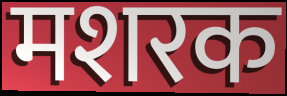
मशरक